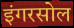
इंगरसोल